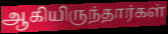
ஆகியிருந்தார்கள்